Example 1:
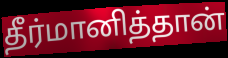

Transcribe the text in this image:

தீர்மானித்தான்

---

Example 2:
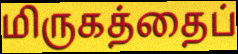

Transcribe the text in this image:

மிருகத்தைப்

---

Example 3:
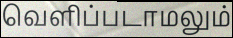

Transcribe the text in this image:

வெளிப்படாமலும்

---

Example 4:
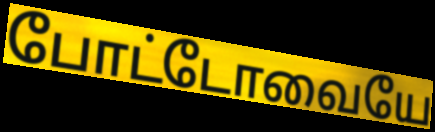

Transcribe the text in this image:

போட்டோவையே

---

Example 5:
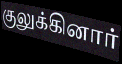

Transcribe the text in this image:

குலுக்கினார்